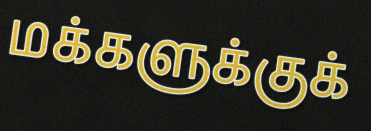
மக்களுக்குக்